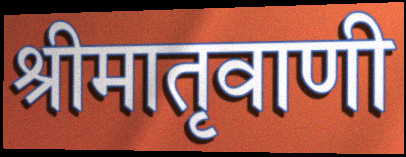
श्रीमातृवाणी